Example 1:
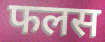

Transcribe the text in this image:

फलस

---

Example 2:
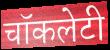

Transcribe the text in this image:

चॉकलेटी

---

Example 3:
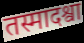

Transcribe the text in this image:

तस्मादश्वा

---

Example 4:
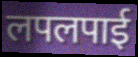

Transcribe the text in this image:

लपलपाई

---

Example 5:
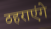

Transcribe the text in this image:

ठहराएंगे